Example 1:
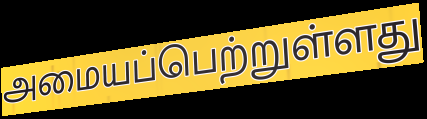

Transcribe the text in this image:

அமையப்பெற்றுள்ளது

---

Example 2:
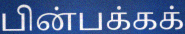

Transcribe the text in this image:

பின்பக்கக்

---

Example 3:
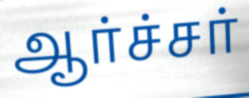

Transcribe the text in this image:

ஆர்ச்சர்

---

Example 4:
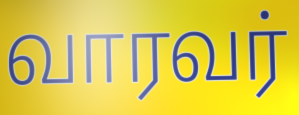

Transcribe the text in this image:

வாரவர்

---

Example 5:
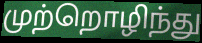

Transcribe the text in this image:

முற்றொழிந்து